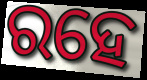
ରହେ